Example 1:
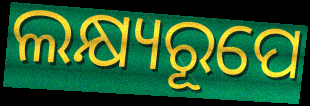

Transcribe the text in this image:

ଲକ୍ଷ୍ୟରୂପେ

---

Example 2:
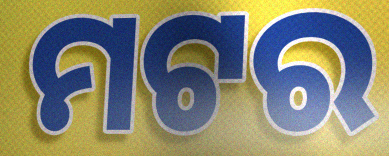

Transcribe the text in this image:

ମଟର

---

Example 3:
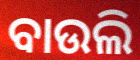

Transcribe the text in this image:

ବାଉଲି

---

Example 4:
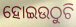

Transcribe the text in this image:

ହୋଇଉଠୁଚି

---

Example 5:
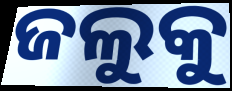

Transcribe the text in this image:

ଜଲୁକୁ